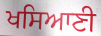
ਖਸਿਆਣੀ